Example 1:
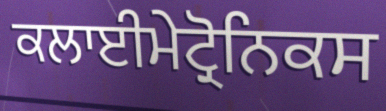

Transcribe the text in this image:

ਕਲਾਈਮੇਟ੍ਰੋਨਿਕਸ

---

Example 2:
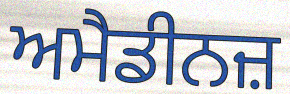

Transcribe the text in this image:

ਅਮੈਡੀਨਜ਼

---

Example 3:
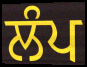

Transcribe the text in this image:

ਲੰਪ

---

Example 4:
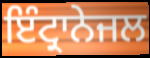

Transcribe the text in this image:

ਇੰਟ੍ਰਾਨੇਜਲ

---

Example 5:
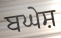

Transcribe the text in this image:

ਬਘੇਸ਼